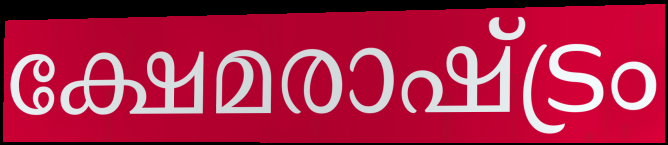
ക്ഷേമരാഷ്ട്രം